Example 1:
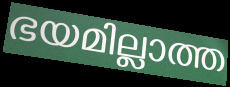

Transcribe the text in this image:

ഭയമില്ലാത്ത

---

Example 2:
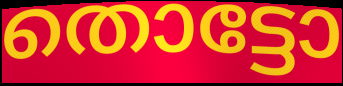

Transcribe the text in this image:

തൊട്ടോ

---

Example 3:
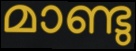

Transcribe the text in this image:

മാണ്ടു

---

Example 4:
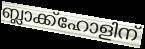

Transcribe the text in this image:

ബ്ലാക്ക്ഹോളിന്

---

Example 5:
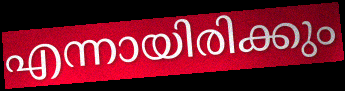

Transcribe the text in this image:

എന്നായിരിക്കും